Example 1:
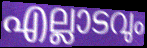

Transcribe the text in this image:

എല്ലാടവും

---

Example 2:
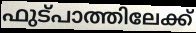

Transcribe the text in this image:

ഫുട്പാത്തിലേക്ക്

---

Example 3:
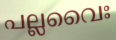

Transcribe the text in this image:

പല്ലവൈഃ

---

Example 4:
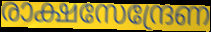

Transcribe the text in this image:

രാക്ഷസേന്ദ്രേണ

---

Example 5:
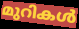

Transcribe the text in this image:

മുറികൾ